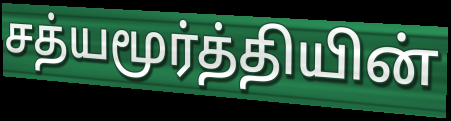
சத்யமூர்த்தியின்